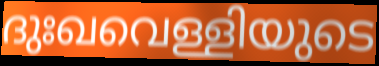
ദുഃഖവെള്ളിയുടെ